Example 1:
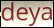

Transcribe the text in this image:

deya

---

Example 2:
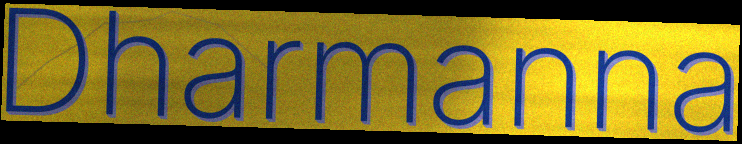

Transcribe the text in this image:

Dharmanna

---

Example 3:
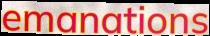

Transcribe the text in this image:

emanations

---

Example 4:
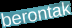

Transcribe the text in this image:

berontak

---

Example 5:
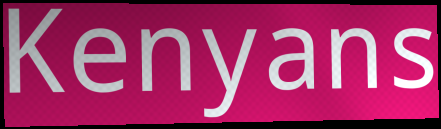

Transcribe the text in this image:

Kenyans